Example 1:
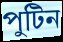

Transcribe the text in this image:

পুটিন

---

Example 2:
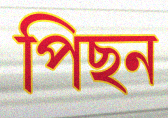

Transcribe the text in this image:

পিছন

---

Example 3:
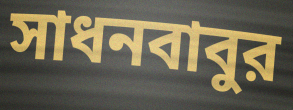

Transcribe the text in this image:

সাধনবাবুর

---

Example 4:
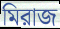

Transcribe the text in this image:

মিরাজ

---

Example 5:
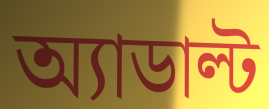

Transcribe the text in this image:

অ্যাডাল্ট